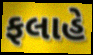
ફલાહે